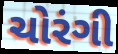
ચોરંગી